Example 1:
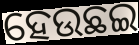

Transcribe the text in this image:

ହେଉଛଇ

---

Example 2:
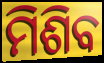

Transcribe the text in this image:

ମିଶିବ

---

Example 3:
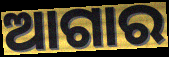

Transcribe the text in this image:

ଆଗାର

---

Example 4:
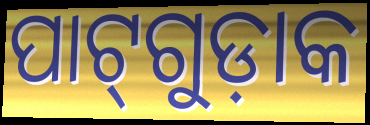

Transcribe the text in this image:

ପାଟ୍‌ଗୁଡ଼ାକ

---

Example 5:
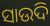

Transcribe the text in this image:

ସାଉଦି